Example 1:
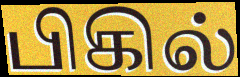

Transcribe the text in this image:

பிகில்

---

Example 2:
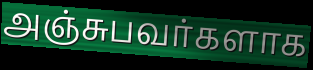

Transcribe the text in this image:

அஞ்சுபவர்களாக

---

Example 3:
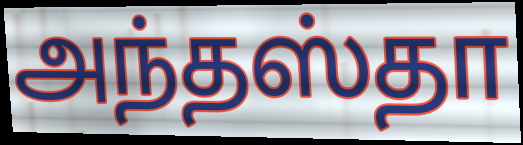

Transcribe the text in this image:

அந்தஸ்தா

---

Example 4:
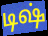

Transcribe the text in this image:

டிஷ்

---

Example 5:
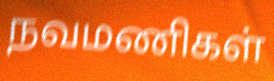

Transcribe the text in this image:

நவமணிகள்